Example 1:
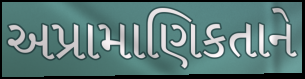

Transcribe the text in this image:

અપ્રામાણિકતાને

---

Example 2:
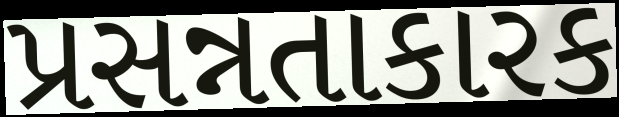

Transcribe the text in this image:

પ્રસન્નતાકારક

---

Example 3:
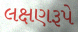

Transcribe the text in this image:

લક્ષણરૂપે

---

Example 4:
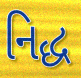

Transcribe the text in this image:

નિદ્ધ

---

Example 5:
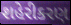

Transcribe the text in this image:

શહેરીકરણ